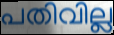
പതിവില്ല